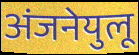
अंजनेयुलू